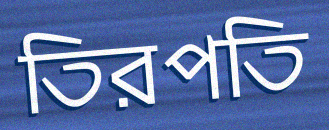
তিরপতি